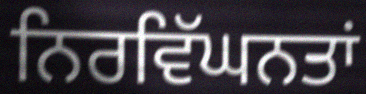
ਨਿਰਵਿੱਘਨਤਾਂ